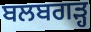
ਬਲਬਗੜ੍ਹ